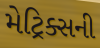
મેટ્રિક્સની